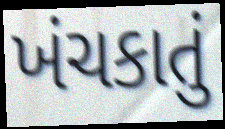
ખંચકાતું